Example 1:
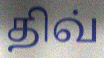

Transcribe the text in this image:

திவ்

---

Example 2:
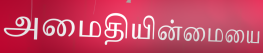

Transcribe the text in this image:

அமைதியின்மையை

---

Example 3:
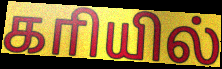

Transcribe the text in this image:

கரியில்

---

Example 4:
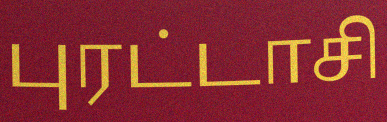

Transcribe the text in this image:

புரட்டாசி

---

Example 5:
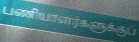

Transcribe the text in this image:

பணியாளர்களுக்குப்